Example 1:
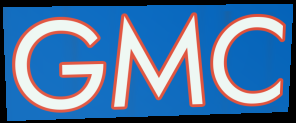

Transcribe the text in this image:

GMC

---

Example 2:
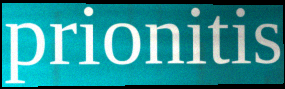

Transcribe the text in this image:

prionitis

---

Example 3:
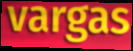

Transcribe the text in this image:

vargas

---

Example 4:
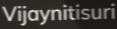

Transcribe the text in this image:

Vijaynitisuri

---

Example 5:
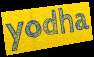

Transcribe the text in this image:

yodha